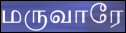
மருவாரே